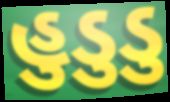
હુડુડુ